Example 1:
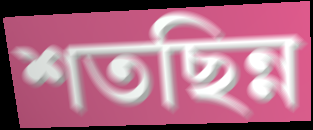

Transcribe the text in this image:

শতছিন্ন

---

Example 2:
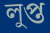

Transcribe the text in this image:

লুপ্ত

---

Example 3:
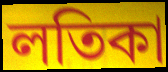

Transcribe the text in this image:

লতিকা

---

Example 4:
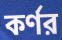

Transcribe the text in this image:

কর্ণর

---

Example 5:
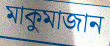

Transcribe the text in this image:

মাকুমাজান